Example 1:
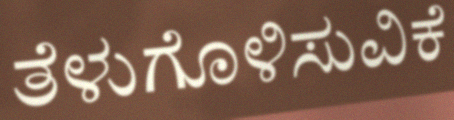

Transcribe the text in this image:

ತೆಳುಗೊಳಿಸುವಿಕೆ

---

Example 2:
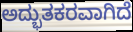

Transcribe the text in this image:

ಅದ್ಭುತಕರವಾಗಿದೆ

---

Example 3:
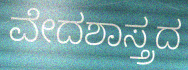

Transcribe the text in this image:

ವೇದಶಾಸ್ತ್ರದ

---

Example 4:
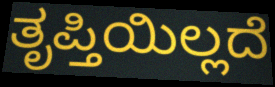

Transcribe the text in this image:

ತೃಪ್ತಿಯಿಲ್ಲದೆ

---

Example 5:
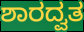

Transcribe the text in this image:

ಶಾರದ್ವತ